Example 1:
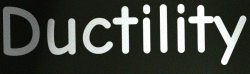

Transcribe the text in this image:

Ductility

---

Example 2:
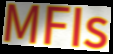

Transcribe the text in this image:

MFIs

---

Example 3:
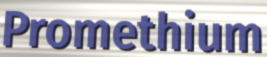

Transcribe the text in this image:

Promethium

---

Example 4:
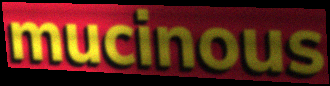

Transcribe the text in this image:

mucinous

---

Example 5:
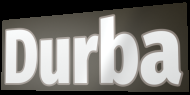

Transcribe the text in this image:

Durba